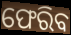
ଫେରିବ